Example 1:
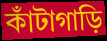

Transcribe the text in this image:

কাঁটাগাড়ি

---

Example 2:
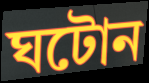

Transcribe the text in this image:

ঘটোন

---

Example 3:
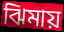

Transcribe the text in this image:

ঝিমায়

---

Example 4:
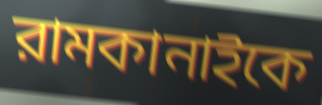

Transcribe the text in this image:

রামকানাইকে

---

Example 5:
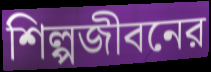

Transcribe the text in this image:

শিল্পজীবনের